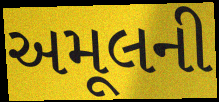
અમૂલની